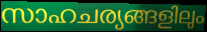
സാഹചര്യങ്ങളിലും